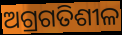
ଅଗ୍ରଗତିଶୀଳ